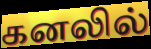
கனலில்